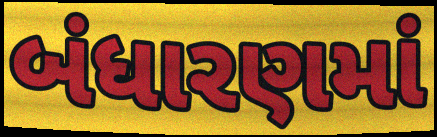
બંધારણમાં